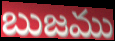
బుజము